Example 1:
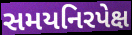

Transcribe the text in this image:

સમયનિરપેક્ષ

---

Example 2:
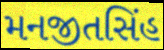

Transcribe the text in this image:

મનજીતસિંહ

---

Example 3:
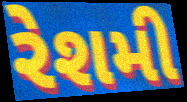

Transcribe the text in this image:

રેશમી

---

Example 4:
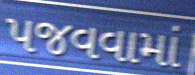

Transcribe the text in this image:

પજવવામાં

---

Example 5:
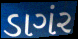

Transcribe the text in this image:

ડાગંર